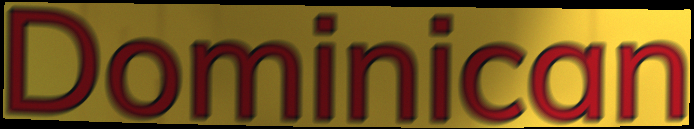
Dominican